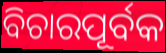
ବିଚାରପୂର୍ବକ